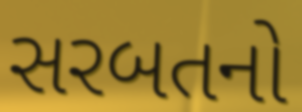
સરબતનો